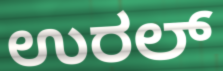
ಉರಲ್